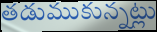
తడుముకున్నట్లు